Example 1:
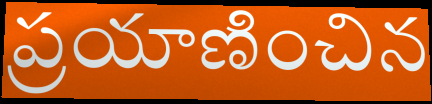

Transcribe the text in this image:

ప్రయాణించిన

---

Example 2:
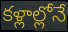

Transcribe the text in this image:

కళ్లాల్లోనే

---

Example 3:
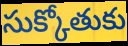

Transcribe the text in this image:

సుక్కోతుకు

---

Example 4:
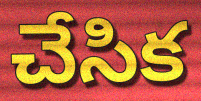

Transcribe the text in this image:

చేసిక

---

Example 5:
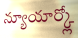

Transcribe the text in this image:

న్యూయార్క్లో